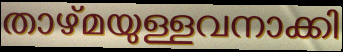
താഴ്മയുള്ളവനാക്കി